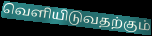
வெளியிடுவதற்கும்